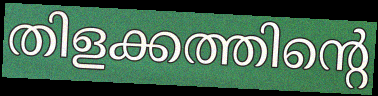
തിളക്കത്തിന്റെ